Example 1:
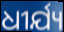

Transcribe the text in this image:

ଧୀର୍ଯ୍ୟ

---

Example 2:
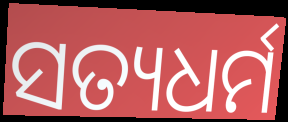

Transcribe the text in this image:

ସତ୍ୟଧର୍ମ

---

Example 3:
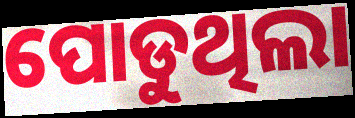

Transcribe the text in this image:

ପୋଡୁଥିଲା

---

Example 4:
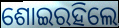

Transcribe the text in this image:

ଶୋଇରହିଲେ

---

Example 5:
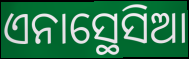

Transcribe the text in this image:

ଏନାସ୍ଥେସିଆ